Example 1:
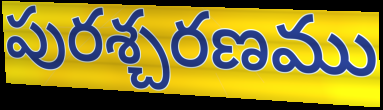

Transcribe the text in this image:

పురశ్చరణము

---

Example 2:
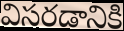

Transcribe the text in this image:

విసరడానికి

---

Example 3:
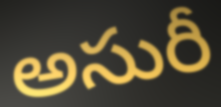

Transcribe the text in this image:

అసురీ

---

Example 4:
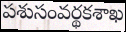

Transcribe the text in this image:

పశుసంవర్థకశాఖ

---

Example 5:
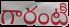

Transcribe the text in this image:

గారంటీ